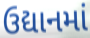
ઉદ્યાનમાં